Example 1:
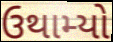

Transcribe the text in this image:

ઉથામ્યો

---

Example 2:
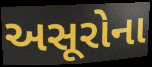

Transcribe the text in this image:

અસૂરોના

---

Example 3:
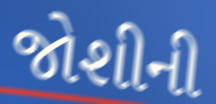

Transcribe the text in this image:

જોશીની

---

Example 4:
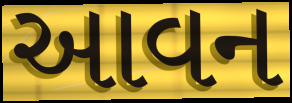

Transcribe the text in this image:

આવન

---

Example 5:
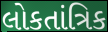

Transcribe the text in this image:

લોકતાંત્રિક